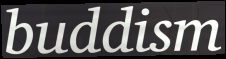
buddism